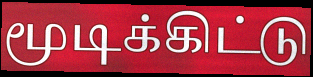
மூடிக்கிட்டு